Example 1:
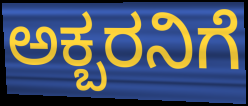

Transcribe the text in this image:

ಅಕ್ಬರನಿಗೆ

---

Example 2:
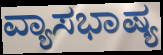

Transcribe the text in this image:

ವ್ಯಾಸಭಾಷ್ಯ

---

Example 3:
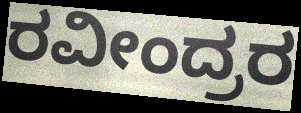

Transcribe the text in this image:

ರವೀಂದ್ರರ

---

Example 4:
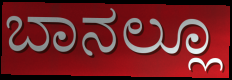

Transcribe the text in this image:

ಬಾನಲ್ಲೂ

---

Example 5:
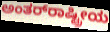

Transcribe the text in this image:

ಅಂತರ್‌ರಾಷ್ಟ್ರೀಯ